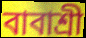
বাবাশ্রী